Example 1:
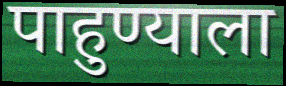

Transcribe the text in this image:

पाहुण्याला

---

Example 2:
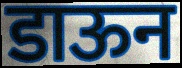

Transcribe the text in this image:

डाऊन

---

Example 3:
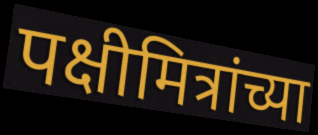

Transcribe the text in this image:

पक्षीमित्रांच्या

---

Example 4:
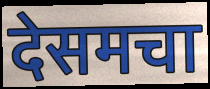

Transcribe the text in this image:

देसमचा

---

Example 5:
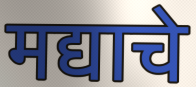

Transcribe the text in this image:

मद्याचे